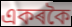
একৰকৈ